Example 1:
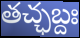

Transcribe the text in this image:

తచ్ఛబ్దః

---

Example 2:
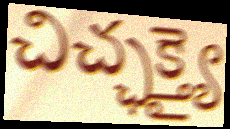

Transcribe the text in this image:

చిచ్ఛక్త్యై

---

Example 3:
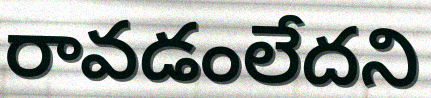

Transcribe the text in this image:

రావడంలేదని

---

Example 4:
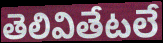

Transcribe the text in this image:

తెలివితేటలే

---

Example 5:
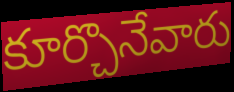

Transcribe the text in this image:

కూర్చొనేవారు